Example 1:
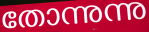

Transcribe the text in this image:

തോന്നുന്നു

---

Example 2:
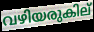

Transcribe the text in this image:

വഴിയരുകില്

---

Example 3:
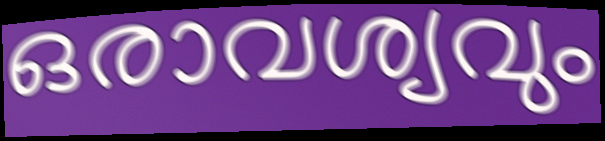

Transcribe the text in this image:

ഒരാവശ്യവും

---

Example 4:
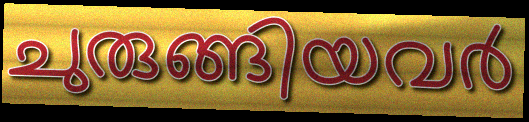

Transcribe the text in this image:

ചുരുങ്ങിയവർ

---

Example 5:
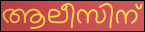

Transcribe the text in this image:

ആലീസിന്